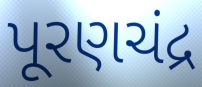
પૂરણચંદ્ર